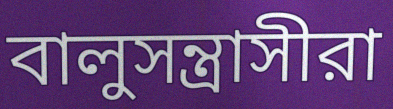
বালুসন্ত্রাসীরা